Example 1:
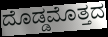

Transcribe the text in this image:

ದೊಡ್ಡಮೊತ್ತದ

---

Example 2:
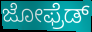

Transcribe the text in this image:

ಜೋಫ್ರೆಡ್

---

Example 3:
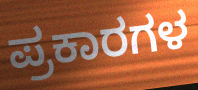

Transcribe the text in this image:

ಪ್ರಕಾರಗಳ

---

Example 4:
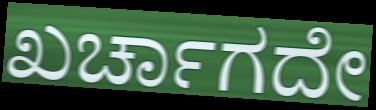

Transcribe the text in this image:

ಖರ್ಚಾಗದೇ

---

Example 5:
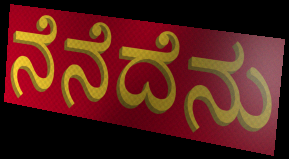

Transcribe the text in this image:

ನೆನೆದೆನು